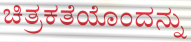
ಚಿತ್ರಕತೆಯೊಂದನ್ನು